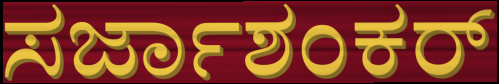
ಸರ್ಜಾಶಂಕರ್